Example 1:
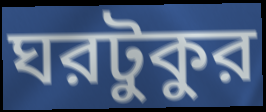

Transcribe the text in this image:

ঘরটুকুর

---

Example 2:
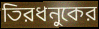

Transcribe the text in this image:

তিরধনুকের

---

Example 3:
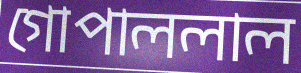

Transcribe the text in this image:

গোপাললাল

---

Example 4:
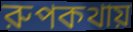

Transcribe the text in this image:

রুপকথায়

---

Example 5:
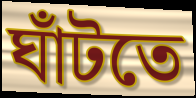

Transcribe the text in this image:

ঘাঁটতে